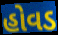
હોવડ